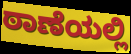
ಠಾಣೆಯಲ್ಲಿ